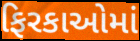
ફિરકાઓમાં